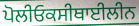
ਪੋਲੀਓਕਸੀਥਾਈਲੀਨ